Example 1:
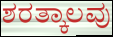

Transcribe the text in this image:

ಶರತ್ಕಾಲವು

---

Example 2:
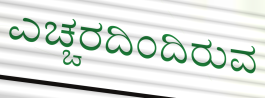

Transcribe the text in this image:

ಎಚ್ಚರದಿಂದಿರುವ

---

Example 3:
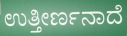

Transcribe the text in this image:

ಉತ್ತೀರ್ಣನಾದೆ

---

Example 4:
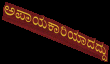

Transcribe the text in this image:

ಅಪಾಯಕಾರಿಯಾದದ್ದು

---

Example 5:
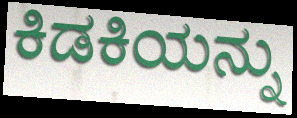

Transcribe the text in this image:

ಕಿಡಕಿಯನ್ನು